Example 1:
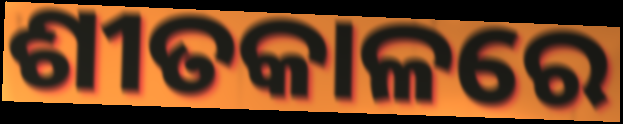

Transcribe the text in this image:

ଶୀତକାଳରେ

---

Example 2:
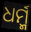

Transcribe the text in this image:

ଧର୍ମ୍ମ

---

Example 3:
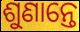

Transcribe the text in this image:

ଶୁଣାନ୍ତେ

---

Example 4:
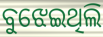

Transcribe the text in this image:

ବୁଝେଇଥିଲି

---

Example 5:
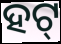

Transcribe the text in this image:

ହଟ୍